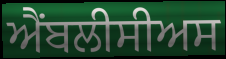
ਐਂਬਲੀਸੀਅਸ